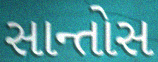
સાન્તોસ